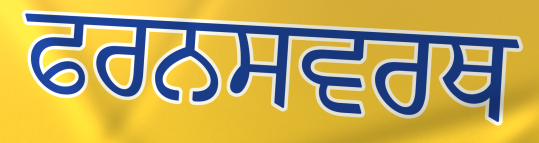
ਫਰਨਸਵਰਥ